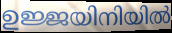
ഉജ്ജയിനിയിൽ